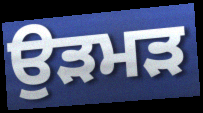
ਉੜਮੜ